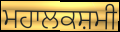
ਮਹਾਲਕਸ਼ਮੀ